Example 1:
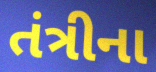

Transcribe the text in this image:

તંત્રીના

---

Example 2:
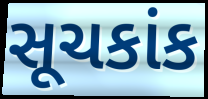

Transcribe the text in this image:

સૂચકાંક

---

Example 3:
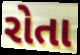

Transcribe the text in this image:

રોતા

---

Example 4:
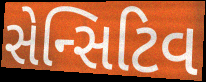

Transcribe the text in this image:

સેન્સિટિવ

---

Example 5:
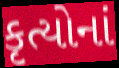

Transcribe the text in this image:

કૃત્યોનાં